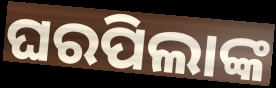
ଘରପିଲାଙ୍କ